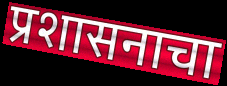
प्रशासनाचा